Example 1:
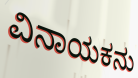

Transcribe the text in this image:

ವಿನಾಯಕನು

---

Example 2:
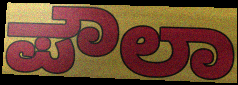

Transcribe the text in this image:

ಪೌಲಾ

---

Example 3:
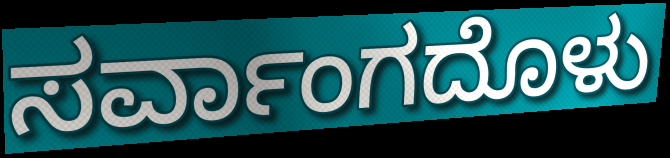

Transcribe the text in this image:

ಸರ್ವಾಂಗದೊಳು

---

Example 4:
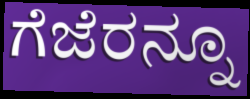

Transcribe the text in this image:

ಗೆಜೆರನ್ನೂ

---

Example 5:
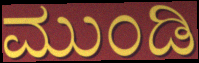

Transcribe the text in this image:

ಮುಂಡಿ